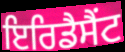
ਇਰਿਡੈਸੈਂਟ